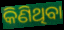
କିଣିଥିବା